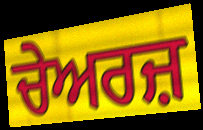
ਚੇਅਰਜ਼